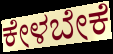
ಕೇಳಬೇಕೆ